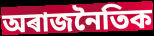
অৰাজনৈতিক